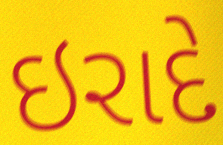
ઇરાદે